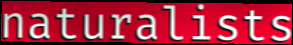
naturalists